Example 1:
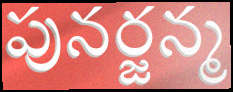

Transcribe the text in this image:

పునర్జన్మ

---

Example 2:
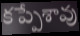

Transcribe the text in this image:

కప్పేశావు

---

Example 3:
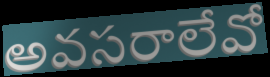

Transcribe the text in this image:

అవసరాలేవో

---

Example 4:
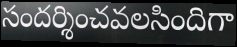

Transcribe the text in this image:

సందర్శించవలసిందిగా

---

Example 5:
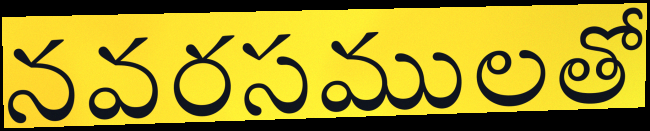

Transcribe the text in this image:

నవరసములతో